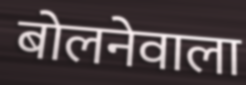
बोलनेवाला